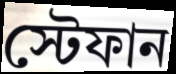
স্টেফান